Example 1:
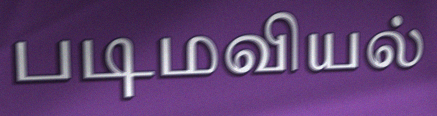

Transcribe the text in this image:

படிமவியல்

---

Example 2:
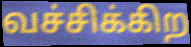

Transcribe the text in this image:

வச்சிக்கிற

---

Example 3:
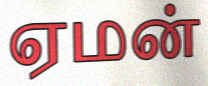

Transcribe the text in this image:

ஏமன்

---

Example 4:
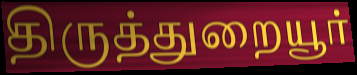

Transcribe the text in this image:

திருத்துறையூர்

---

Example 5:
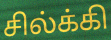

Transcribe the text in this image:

சில்க்கி